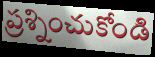
ప్రశ్నించుకోండి